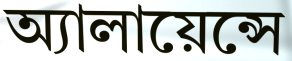
অ্যালায়েন্সে